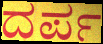
ದರ್ಪ